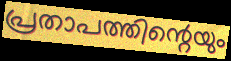
പ്രതാപത്തിന്റെയും